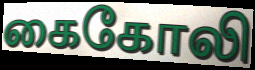
கைகோலி